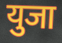
युजा